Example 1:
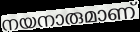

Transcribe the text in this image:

നയനാരുമാണ്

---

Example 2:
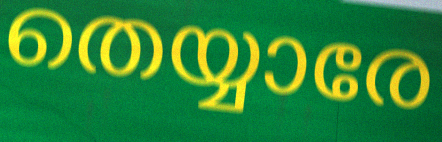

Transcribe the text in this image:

തെയ്യാരേ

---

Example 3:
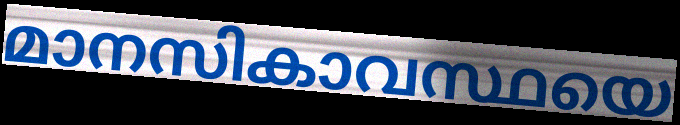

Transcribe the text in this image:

മാനസികാവസ്ഥയെ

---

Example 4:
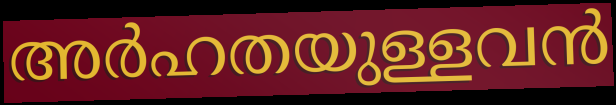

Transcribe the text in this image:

അർഹതയുള്ളവൻ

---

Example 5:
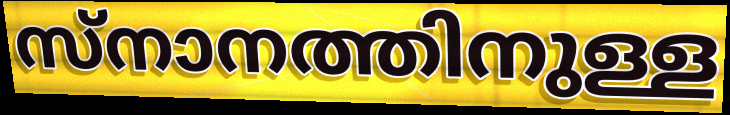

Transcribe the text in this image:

സ്നാനത്തിനുള്ള